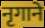
नृगाने